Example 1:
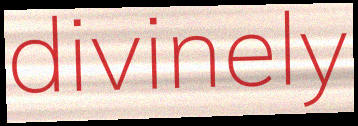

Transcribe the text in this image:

divinely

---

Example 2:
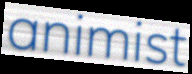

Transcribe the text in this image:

animist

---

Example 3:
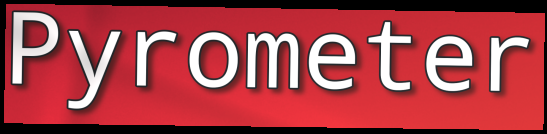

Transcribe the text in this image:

Pyrometer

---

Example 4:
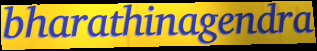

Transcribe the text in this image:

bharathinagendra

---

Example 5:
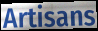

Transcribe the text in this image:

Artisans